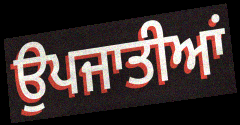
ਉਪਜਾਤੀਆਂ